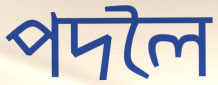
পদলৈ